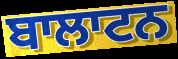
ਬਾਲਾਟਨ